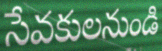
సేవకులనుండి